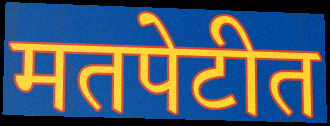
मतपेटीत